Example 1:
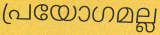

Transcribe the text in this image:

പ്രയോഗമല്ല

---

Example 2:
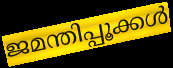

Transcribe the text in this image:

ജമന്തിപ്പൂക്കൾ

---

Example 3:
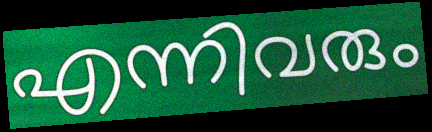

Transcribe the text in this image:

എന്നിവരും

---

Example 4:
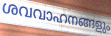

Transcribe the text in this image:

ശവവാഹനങ്ങളും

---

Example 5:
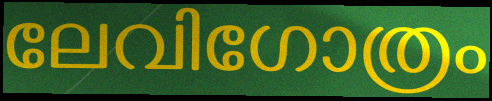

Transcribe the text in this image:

ലേവിഗോത്രം